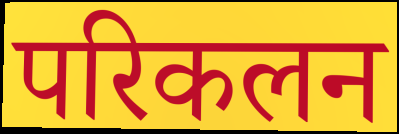
परिकलन